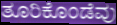
ತೂರಿಕೊಂಡೆವು